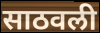
साठवली